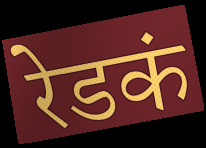
रेडकं